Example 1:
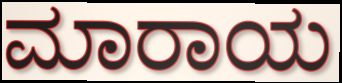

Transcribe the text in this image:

ಮಾರಾಯ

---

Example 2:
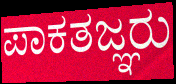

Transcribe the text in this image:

ಪಾಕತಜ್ಞರು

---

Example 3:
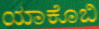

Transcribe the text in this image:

ಯಾಕೊಬಿ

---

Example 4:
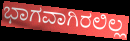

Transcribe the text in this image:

ಭಾಗವಾಗಿರಲಿಲ್ಲ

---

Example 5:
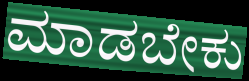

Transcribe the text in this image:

ಮಾಡಬೇಕು